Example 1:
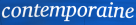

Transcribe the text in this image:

contemporaine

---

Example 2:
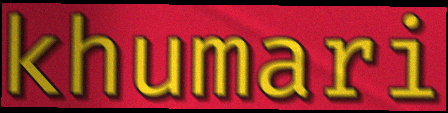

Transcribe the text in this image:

khumari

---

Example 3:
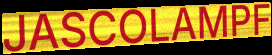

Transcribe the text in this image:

JASCOLAMPF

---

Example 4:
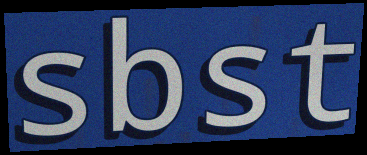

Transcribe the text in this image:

sbst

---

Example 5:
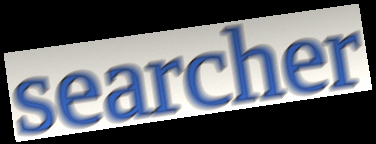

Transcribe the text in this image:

searcher